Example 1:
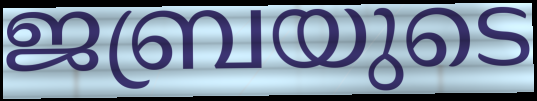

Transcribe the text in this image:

ജബ്രയുടെ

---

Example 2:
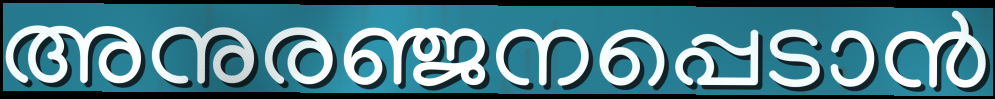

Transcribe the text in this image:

അനുരഞ്ജനപ്പെടാൻ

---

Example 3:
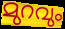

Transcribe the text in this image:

മുറവും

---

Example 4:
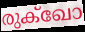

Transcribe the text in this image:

രുക്ഖോ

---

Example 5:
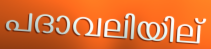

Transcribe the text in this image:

പദാവലിയില്